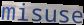
misuse